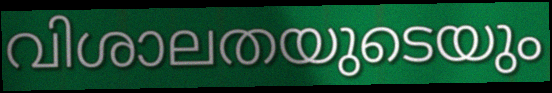
വിശാലതയുടെയും